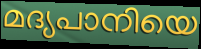
മദ്യപാനിയെ